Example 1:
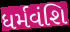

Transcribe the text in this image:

ધર્મવંશિ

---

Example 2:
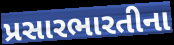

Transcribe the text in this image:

પ્રસારભારતીના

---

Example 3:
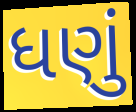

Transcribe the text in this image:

ધણું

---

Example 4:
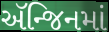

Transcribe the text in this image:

ઍન્જિનમાં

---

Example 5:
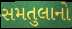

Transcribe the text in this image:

સમતુલાનો